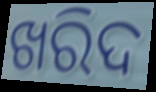
ଖରିଦ